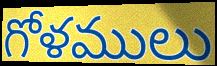
గోళములు